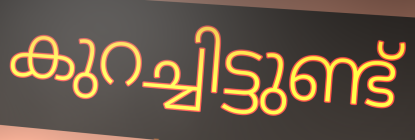
കുറച്ചിട്ടുണ്ട്